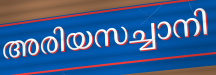
അരിയസച്ചാനി